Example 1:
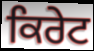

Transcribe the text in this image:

ਕਿਰੇਟ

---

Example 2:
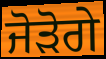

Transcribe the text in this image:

ਜੋੜੋਗੇ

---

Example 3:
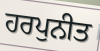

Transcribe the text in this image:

ਹਰਪੁਨੀਤ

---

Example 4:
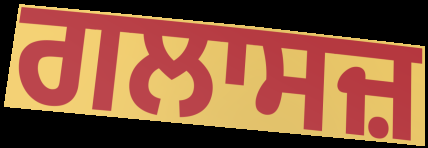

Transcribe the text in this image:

ਗਲਾਸਜ਼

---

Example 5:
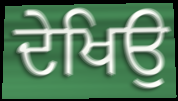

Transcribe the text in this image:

ਦੇਖਿਉ